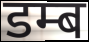
डम्ब